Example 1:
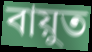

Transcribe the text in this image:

বায়ুত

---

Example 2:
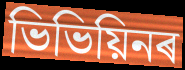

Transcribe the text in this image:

ভিভিয়িনৰ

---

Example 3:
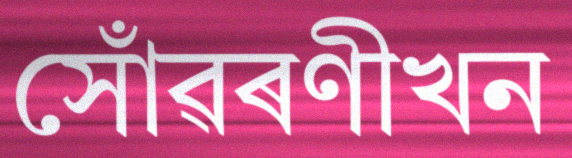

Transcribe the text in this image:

সোঁৱৰণীখন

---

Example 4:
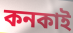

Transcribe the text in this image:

কনকাই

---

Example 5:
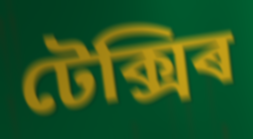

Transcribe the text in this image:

টেক্সিৰ